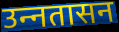
उन्नतासन